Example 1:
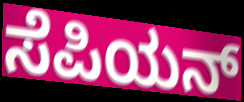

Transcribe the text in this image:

ಸೆಪಿಯನ್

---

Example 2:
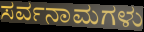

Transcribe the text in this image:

ಸರ್ವನಾಮಗಳು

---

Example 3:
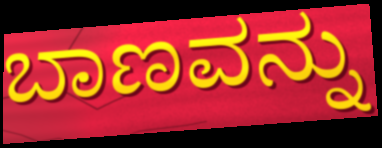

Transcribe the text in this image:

ಬಾಣವನ್ನು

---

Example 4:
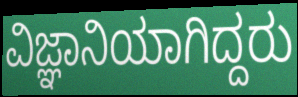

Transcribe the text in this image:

ವಿಜ್ಞಾನಿಯಾಗಿದ್ದರು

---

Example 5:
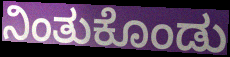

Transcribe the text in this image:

ನಿಂತುಕೊಂಡು